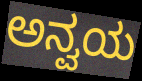
ಅನ್ವಯ